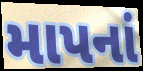
માપનાં